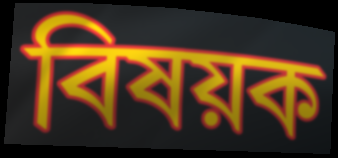
বিষয়ক